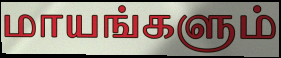
மாயங்களும்